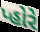
પ્હોરે